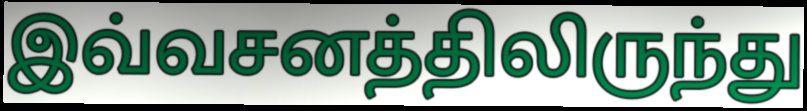
இவ்வசனத்திலிருந்து